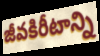
జీవకిరీటాన్ని